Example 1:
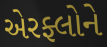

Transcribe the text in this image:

એરફ્લોને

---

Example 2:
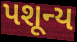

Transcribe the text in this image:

પશૂન્ય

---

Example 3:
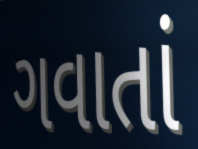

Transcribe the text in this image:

ગવાતાં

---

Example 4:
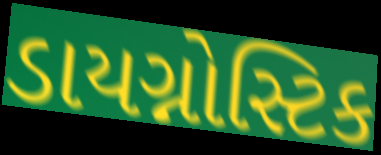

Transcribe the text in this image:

ડાયગ્નોસ્ટિક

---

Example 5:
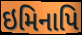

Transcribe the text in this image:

ઇમિનાપિ